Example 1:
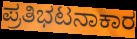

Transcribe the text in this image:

ಪ್ರತಿಭಟನಾಕಾರ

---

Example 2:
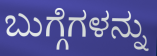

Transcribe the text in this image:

ಬುಗ್ಗೆಗಳನ್ನು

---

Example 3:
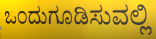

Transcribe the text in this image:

ಒಂದುಗೂಡಿಸುವಲ್ಲಿ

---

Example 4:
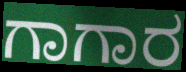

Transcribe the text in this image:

ಗಾಗಾರ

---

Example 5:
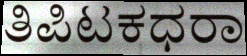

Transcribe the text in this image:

ತಿಪಿಟಕಧರಾ